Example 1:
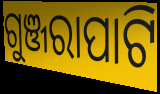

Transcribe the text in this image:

ଗୁଞ୍ଜରାପାଟି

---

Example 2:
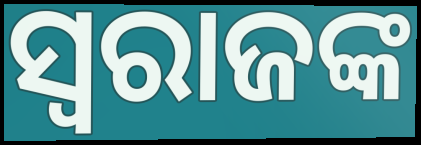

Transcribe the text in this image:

ସ୍ୱରାଜଙ୍କ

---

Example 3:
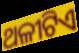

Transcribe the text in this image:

ଥଳୀଟିଏ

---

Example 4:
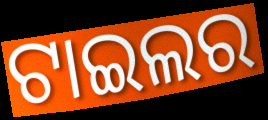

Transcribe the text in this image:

ଟାଇଲର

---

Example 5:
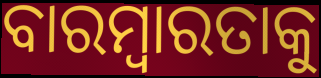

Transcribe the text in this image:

ବାରମ୍ବାରତାକୁ